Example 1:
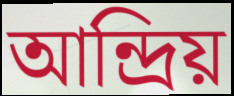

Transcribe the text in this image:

আন্দ্রিয়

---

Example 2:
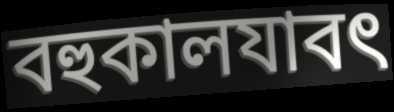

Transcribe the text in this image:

বহুকালযাবৎ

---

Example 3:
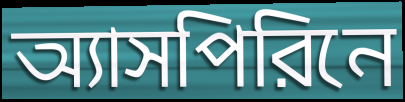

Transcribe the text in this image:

অ্যাসপিরিনে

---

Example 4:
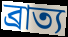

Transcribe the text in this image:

ব্রাত্য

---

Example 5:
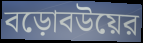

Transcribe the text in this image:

বড়োবউয়ের